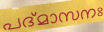
പദ്മാസനഃ